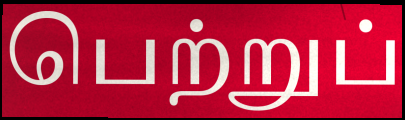
பெற்றுப்